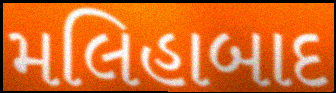
મલિહાબાદ